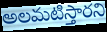
అలమటిస్తారని